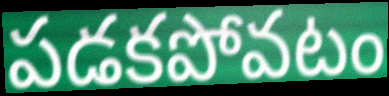
పడకపోవటం